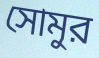
সোমুর